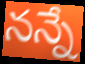
నన్నే